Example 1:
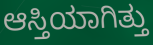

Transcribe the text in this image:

ಆಸ್ತಿಯಾಗಿತ್ತು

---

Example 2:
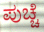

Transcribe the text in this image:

ಪುಚ್ಚೆ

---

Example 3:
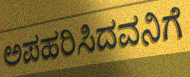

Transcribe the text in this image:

ಅಪಹರಿಸಿದವನಿಗೆ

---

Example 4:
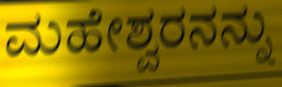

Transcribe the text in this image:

ಮಹೇಶ್ವರನನ್ನು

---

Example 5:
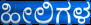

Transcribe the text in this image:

ಹೀಲಿಗಳ